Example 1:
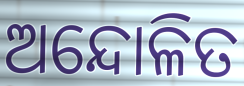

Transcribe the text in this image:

ଅନ୍ଦୋଳିତ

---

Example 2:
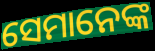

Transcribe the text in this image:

ସେମାନେଙ୍କ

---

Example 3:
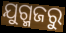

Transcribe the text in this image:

ଯୁଗ୍ମଜରୁ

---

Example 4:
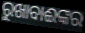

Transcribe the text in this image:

ରୁଖାବାଈଙ୍କର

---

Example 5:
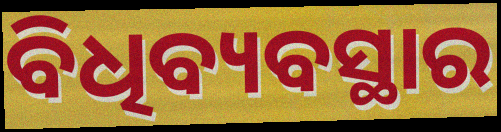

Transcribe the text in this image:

ବିଧିବ୍ୟବସ୍ଥାର